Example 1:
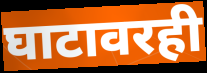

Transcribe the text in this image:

घाटावरही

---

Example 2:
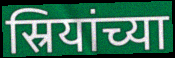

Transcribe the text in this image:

स्रियांच्या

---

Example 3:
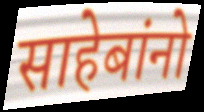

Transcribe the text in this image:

साहेबांनो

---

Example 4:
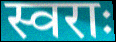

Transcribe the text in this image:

स्वराः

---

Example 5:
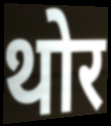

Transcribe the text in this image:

थोर